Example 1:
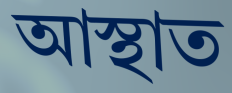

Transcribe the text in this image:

আস্থাত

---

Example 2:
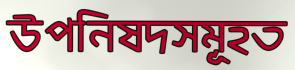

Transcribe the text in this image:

উপনিষদসমূহত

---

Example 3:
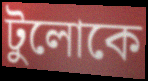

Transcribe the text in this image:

টুলোকে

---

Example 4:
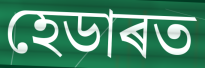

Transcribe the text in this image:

হেডাৰত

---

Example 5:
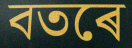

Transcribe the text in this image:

বতৰে